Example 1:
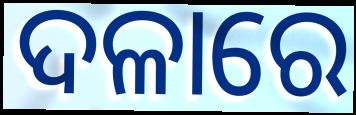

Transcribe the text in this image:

ଦଳାରେ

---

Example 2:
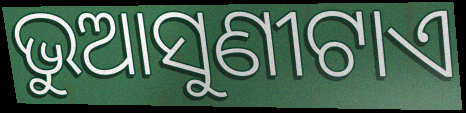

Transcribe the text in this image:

ଭୁଆସୁଣୀଟାଏ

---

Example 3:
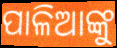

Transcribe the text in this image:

ପାଳିଆଙ୍କୁ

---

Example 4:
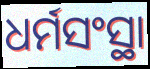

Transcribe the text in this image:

ଧର୍ମସଂସ୍ଥା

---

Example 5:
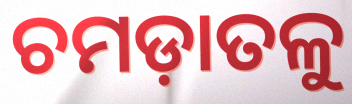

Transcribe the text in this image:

ଚମଡ଼ାତଳୁ